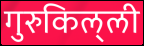
गुरुकिल्ली